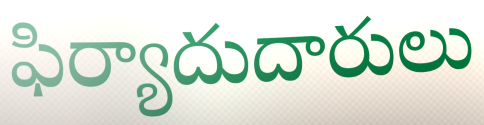
ఫిర్యాదుదారులు